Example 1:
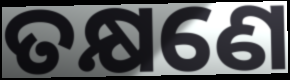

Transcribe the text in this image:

ତକ୍ଷଣେ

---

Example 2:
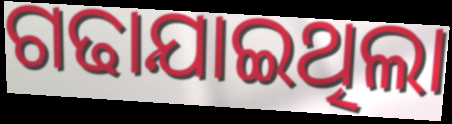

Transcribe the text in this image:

ଗଢାଯାଇଥିଲା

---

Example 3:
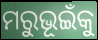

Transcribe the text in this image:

ମରୁଭୂଇଁକୁ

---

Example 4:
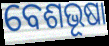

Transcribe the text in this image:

ବେଶଭୂଷା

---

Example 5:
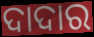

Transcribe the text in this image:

ଦାଦାର